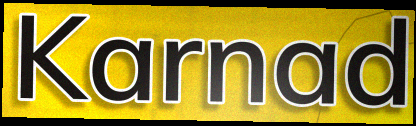
Karnad